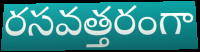
రసవత్తరంగా